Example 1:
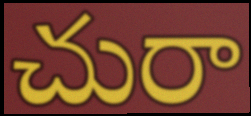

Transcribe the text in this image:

చురా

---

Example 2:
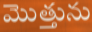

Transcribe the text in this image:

మొత్తును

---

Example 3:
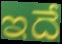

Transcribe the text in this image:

ఇదే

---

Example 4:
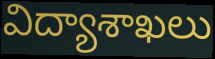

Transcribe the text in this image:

విద్యాశాఖలు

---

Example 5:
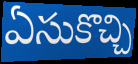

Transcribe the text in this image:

ఏసుకొచ్చి